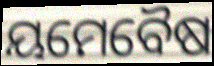
ୟମେବୈଷ